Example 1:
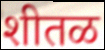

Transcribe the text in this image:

शीतळ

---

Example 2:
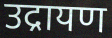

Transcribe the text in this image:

उद्रायण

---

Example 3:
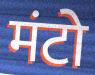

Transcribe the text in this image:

मंटो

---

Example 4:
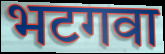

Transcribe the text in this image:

भटगवा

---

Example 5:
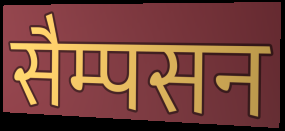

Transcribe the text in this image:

सैम्पसन